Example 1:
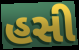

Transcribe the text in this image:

હસી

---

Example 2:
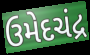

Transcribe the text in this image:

ઉમેદચંદ્ર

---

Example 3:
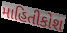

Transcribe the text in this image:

માહિતીકોશ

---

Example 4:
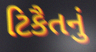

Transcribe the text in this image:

ટિકૈતનું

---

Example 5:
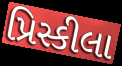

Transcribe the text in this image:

પ્રિસ્કીલા